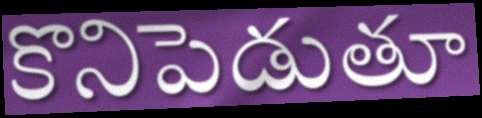
కొనిపెడుతూ